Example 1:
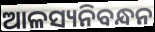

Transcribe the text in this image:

ଆଳସ୍ୟନିବନ୍ଧନ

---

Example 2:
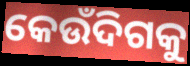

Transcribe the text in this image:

କେଉଁଦିଗକୁ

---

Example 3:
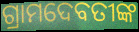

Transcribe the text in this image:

ଗ୍ରାମଦେବତୀଙ୍କ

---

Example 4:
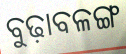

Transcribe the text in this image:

ବୁଢ଼ାବଳଙ୍ଗ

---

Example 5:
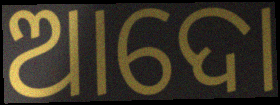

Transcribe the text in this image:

ଆଦୋ